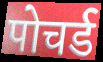
पोचर्ड